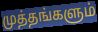
முத்தங்களும்